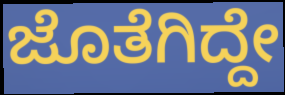
ಜೊತೆಗಿದ್ದೇ